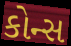
કોન્સ